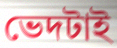
ভেদটাই